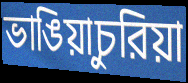
ভাঙিয়াচুরিয়া